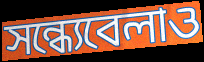
সন্ধ্যেবেলাও